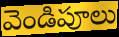
వెండిపూలు